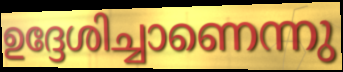
ഉദ്ദേശിച്ചാണെന്നു